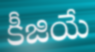
కీజియే